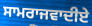
ਸਾਮਰਾਜਵਾਦੀਏ